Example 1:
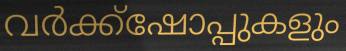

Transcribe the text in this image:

വർക്ക്ഷോപ്പുകളും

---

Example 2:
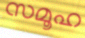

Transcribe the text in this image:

സമൂഹ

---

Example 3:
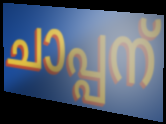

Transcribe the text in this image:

ചാപ്പന്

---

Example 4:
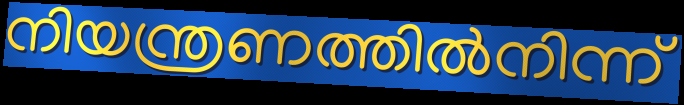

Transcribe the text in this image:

നിയന്ത്രണത്തിൽനിന്ന്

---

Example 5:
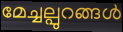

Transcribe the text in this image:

മേച്ചല്പുറങ്ങൾ